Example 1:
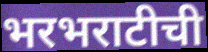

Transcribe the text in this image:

भरभराटीची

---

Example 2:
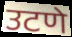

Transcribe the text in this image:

उटणे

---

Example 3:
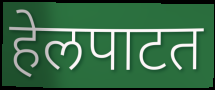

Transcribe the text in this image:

हेलपाटत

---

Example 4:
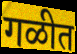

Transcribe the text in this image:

गळीत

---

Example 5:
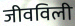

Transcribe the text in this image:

जीवविली